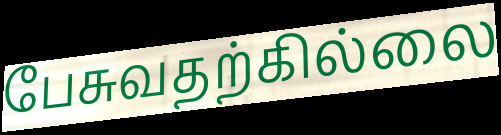
பேசுவதற்கில்லை